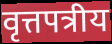
वृत्तपत्रीय